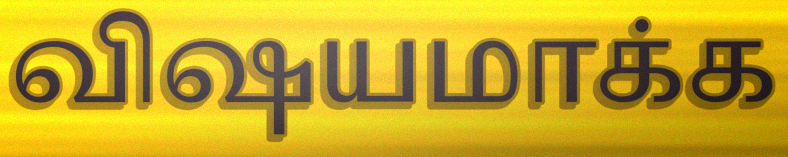
விஷயமாக்க